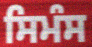
ਸਿਮੰਸ